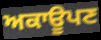
ਅਕਾਊਪਣ